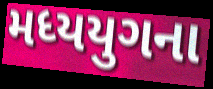
મધ્યયુગના